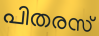
പിതരസ്